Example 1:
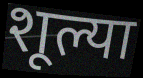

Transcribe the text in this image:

शूल्या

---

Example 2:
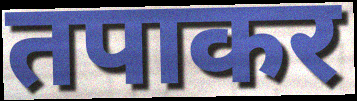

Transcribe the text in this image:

तपाकर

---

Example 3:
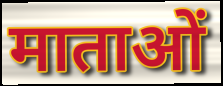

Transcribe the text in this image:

माताओं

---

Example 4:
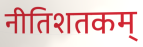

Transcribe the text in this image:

नीतिशतकम्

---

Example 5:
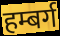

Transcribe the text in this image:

हम्बर्ग